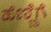
ಹೆಣ್ಣಿಗೆ